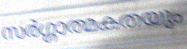
സർഗ്ഗാത്മകതയും